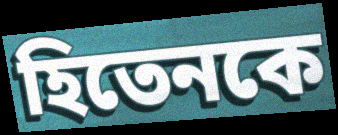
হিতেনকে